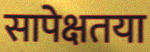
सापेक्षतया